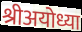
श्रीअयोध्या